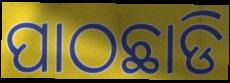
ପାଠଛାଡି